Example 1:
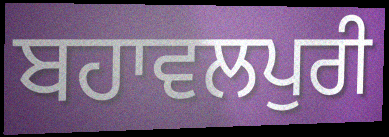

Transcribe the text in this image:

ਬਹਾਵਲਪੁਰੀ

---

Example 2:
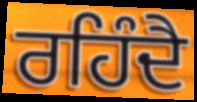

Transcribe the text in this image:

ਰਹਿੰਦੈ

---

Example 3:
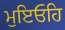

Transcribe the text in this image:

ਮੁਇਓਹਿ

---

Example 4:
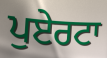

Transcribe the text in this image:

ਪੁਏਰਟਾ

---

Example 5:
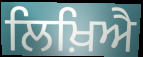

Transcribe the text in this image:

ਲਿਖ਼ਿਐ